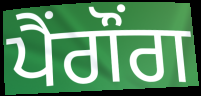
ਪੈਂਗੌਂਗ